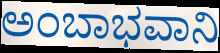
ಅಂಬಾಭವಾನಿ